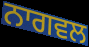
ਨਾਗਵਲ